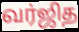
வர்ஜித